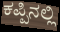
ಕಪ್ಪಿನಲ್ಲಿ